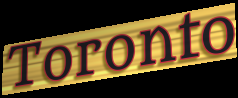
Toronto